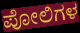
ಪೋಲಿಗಳ